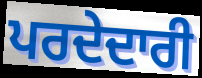
ਪਰਦੇਦਾਰੀ